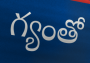
గ్యంతో